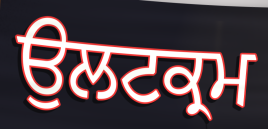
ਉਲਟਕ੍ਰਮ